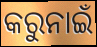
କରୁନାଇଁ